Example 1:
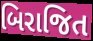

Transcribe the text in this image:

બિરાજિત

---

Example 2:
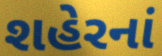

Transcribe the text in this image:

શહેરનાં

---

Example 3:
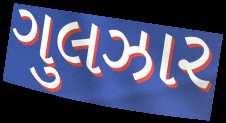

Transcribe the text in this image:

ગુલઝાર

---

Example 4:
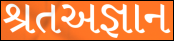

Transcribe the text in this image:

શ્રતઅજ્ઞાન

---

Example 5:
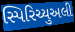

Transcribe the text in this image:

સ્પિરિચ્યુઅલી